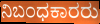
ನಿಬಂಧಕಾರರು